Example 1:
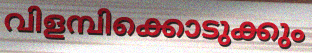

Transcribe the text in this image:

വിളമ്പിക്കൊടുക്കും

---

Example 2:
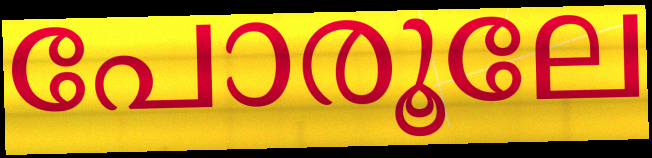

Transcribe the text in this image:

പോരൂലേ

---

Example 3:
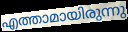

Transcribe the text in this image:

എത്താമായിരുന്നു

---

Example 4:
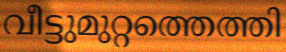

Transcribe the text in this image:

വീട്ടുമുറ്റത്തെത്തി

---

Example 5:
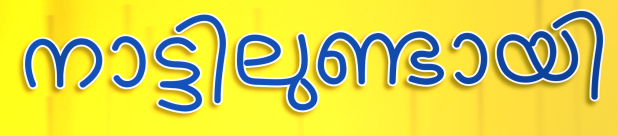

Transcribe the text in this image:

നാട്ടിലുണ്ടായി